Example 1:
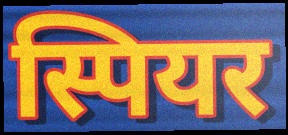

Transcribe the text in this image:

स्पियर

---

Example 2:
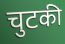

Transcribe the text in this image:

चुटकी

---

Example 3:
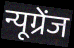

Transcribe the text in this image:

न्यूग्रेंज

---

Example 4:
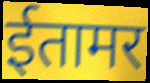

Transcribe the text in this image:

ईतामर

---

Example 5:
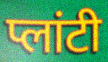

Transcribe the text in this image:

प्लांटी